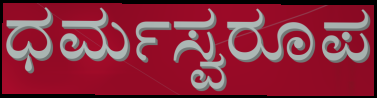
ಧರ್ಮಸ್ವರೂಪ